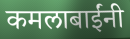
कमलाबाईंनी